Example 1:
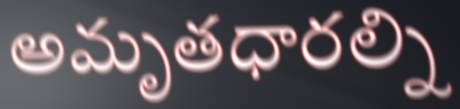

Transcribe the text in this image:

అమృతధారల్ని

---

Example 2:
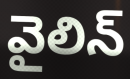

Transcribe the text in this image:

వైలిన్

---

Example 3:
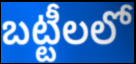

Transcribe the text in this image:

బట్టీలలో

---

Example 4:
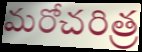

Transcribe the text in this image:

మరోచరిత్ర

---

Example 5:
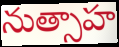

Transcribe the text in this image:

నుత్సాహ